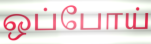
ஒப்போய்